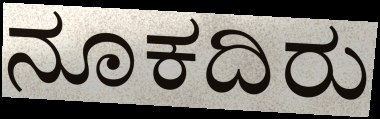
ನೂಕದಿರು